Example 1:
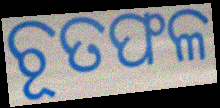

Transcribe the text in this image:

ଚୂତଫଳ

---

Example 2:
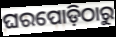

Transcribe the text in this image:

ଘରପୋଡ଼ିଠାରୁ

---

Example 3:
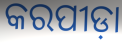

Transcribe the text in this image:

କରପୀଡ଼ା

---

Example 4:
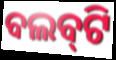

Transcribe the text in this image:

ବଲବ୍‌ଟି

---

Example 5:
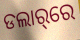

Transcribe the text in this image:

ଡଲାର୍‌ରେ